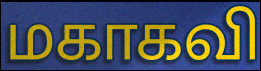
மகாகவி